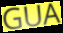
GUA